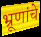
भ्रूणांचे